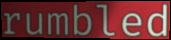
rumbled